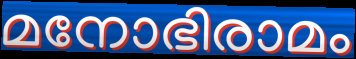
മനോഭിരാമം